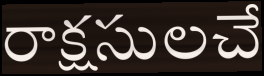
రాక్షసులచే